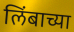
लिंबाच्या